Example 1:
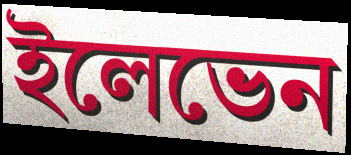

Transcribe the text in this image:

ইলেভেন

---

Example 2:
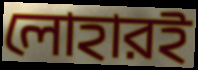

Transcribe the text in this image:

লোহারই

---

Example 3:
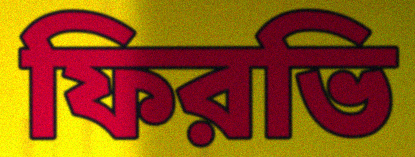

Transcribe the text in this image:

ফিরভি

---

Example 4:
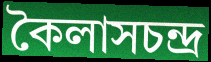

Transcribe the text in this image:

কৈলাসচন্দ্র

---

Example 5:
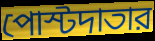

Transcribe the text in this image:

পোস্টদাতার